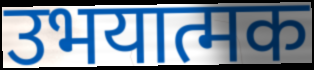
उभयात्मक